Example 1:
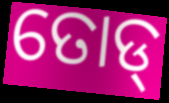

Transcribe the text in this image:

ତୋଡ୍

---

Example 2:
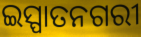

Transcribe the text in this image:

ଇସ୍ପାତନଗରୀ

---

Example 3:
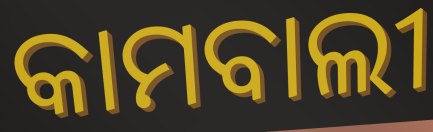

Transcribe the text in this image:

କାମବାଲୀ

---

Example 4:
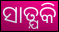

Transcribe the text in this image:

ସାତ୍ଯକି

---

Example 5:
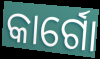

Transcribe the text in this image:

କାର୍ଗୋ